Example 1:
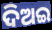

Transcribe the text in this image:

ଦିଅଇ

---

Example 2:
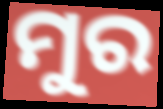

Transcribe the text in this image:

ମୁର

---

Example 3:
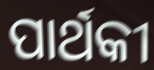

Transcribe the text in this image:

ପାର୍ଥକୀ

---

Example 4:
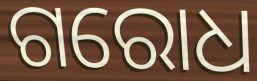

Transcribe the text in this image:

ଗରୋଧ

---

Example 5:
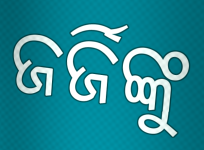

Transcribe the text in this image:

ଜର୍ଜିଙ୍କୁ